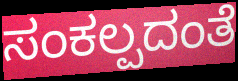
ಸಂಕಲ್ಪದಂತೆ